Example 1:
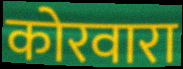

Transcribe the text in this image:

कोरवारा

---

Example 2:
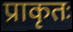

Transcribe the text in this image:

प्राकृतः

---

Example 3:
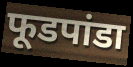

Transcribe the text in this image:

फूडपांडा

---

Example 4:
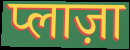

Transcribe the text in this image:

प्लाज़ा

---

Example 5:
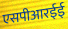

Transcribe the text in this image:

एसपीआरईई